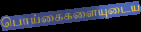
பொய்கைகளையுடைய